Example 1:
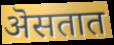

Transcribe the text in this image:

ऄसतात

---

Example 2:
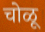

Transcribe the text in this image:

चोळू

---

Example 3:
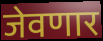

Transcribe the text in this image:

जेवणार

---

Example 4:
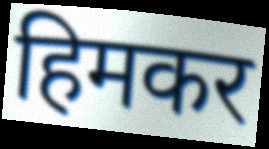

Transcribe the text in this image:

हिमकर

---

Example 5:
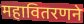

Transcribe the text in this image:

महावितरणने